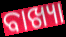
ବାଖ୍ୟା